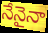
నేనైనా